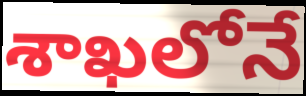
శాఖలోనే